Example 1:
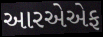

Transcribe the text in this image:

આરએએફ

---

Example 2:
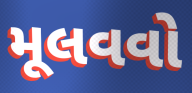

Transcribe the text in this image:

મૂલવવો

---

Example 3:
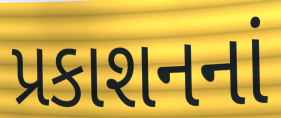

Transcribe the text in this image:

પ્રકાશનનાં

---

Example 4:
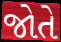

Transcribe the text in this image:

જોતે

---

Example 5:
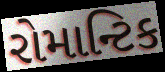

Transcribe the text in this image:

રોમાન્ટિક